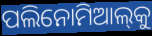
ପଲିନୋମିଆଲ୍‌କୁ